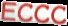
ECCC